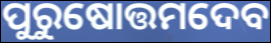
ପୁରୁଷୋତ୍ତମଦେବ